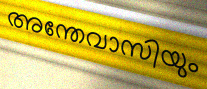
അന്തേവാസിയും